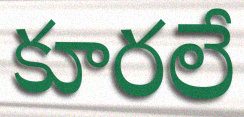
కూరలే